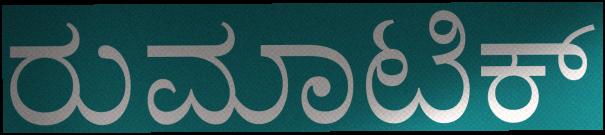
ರುಮಾಟಿಕ್